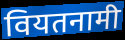
वियतनामी